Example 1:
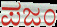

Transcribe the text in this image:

ಪಜಂ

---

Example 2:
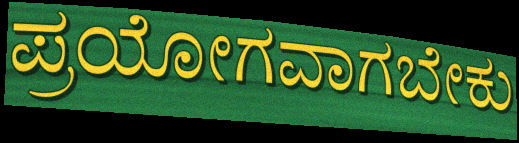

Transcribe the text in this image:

ಪ್ರಯೋಗವಾಗಬೇಕು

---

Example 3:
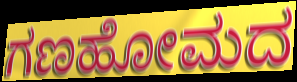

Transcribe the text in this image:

ಗಣಹೋಮದ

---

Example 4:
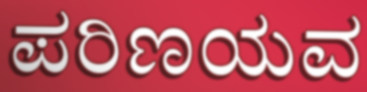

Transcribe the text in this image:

ಪರಿಣಯವ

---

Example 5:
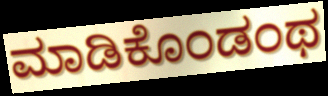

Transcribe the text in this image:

ಮಾಡಿಕೊಂಡಂಥ